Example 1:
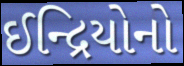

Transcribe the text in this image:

ઈન્દ્રિયોનો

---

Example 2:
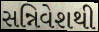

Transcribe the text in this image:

સન્નિવેશથી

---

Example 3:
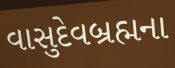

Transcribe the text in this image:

વાસુદેવબ્રહ્મના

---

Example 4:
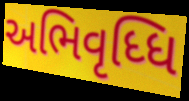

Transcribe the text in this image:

અભિવૃધ્ધિ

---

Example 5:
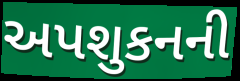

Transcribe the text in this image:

અપશુકનની